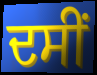
ਦਸੀਂ